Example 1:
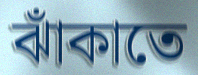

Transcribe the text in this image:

ঝাঁকাতে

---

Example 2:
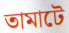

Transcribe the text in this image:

তামাটে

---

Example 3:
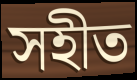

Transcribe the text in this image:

সহীত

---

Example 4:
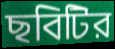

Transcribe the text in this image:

ছবিটির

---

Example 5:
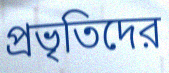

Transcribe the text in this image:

প্রভৃতিদের